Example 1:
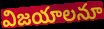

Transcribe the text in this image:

విజయాలనూ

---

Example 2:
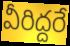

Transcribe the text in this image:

వీరిద్దరే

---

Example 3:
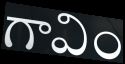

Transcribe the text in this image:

గావిం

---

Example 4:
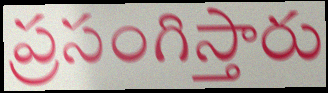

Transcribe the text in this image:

ప్రసంగిస్తారు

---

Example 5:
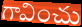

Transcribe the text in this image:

గావించు